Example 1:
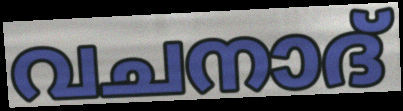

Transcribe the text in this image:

വചനാദ്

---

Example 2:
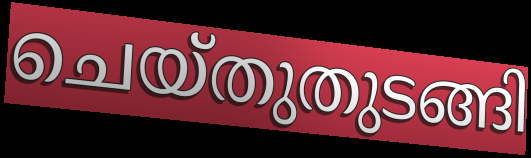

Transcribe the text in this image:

ചെയ്തുതുടങ്ങി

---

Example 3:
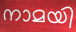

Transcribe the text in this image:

നാമയി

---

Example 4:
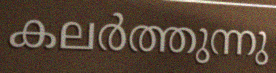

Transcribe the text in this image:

കലർത്തുന്നു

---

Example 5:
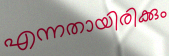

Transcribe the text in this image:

എന്നതായിരിക്കും